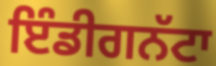
ਇੰਡੀਗਨੱਟਾ